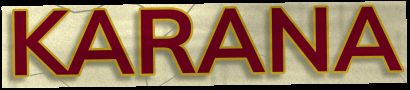
KARANA